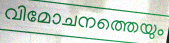
വിമോചനത്തെയും